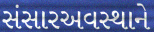
સંસારઅવસ્થાને